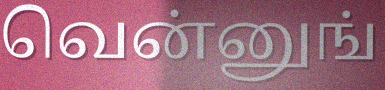
வென்னுங்